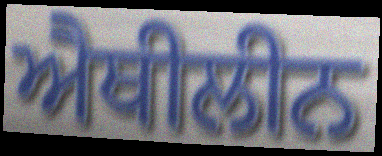
ਐਥੀਲੀਨ